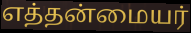
எத்தன்மையர்